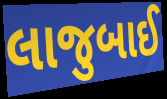
લાજુબાઈ